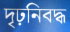
দৃঢ়নিবদ্ধ